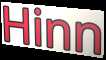
Hinn